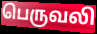
பெருவலி